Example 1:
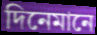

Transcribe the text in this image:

দিনেমানে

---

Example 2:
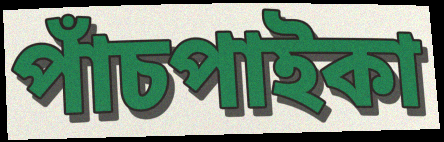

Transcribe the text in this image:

পাঁচপাইকা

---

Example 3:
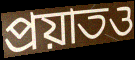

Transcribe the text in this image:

প্রয়াতও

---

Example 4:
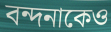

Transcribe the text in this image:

বন্দনাকেও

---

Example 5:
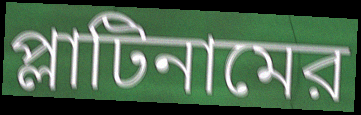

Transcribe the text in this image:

প্লাটিনামের